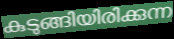
കുടുങ്ങിയിരിക്കുന്ന